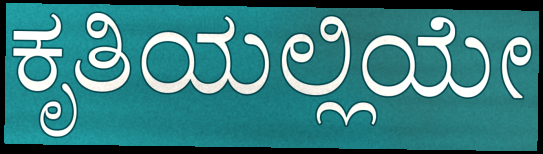
ಕೃತಿಯಲ್ಲಿಯೇ